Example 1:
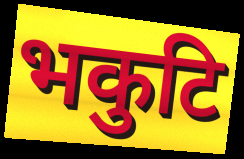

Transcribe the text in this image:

भकुटि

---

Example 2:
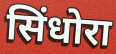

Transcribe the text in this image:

सिंधोरा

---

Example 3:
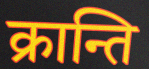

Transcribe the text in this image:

क्रान्ति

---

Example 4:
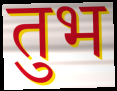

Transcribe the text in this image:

तुभ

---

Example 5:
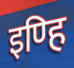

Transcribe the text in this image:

इण्हि